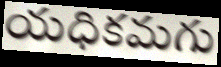
యధికమగు